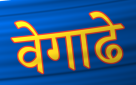
वेगाढे